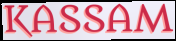
KASSAM